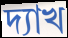
দ্যাখ